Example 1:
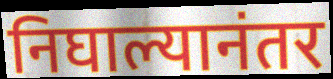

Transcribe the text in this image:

निघाल्यानंतर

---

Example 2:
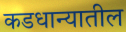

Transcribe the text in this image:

कडधान्यातील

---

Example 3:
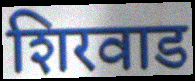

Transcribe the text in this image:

शिरवाड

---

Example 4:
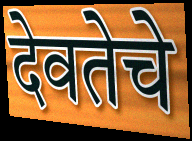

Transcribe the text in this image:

देवतेचे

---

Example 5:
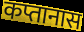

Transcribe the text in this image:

कप्तानास